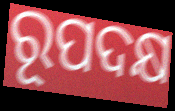
ରୂପଦକ୍ଷ